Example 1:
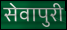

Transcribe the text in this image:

सेवापुरी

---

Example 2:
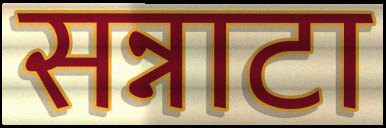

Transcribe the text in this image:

सन्नाटा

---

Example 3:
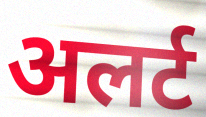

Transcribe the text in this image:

अलर्ट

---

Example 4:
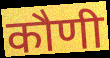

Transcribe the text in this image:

कौणी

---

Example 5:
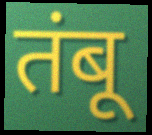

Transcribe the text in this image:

तंबू